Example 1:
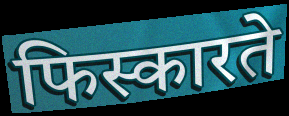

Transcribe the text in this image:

फिस्कारते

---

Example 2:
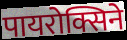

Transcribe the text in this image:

पायरोक्सिने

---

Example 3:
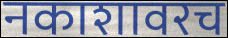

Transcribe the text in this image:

नकाशावरच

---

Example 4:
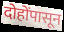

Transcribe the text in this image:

दोहोंपासून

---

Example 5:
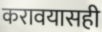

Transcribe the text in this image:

करावयासही